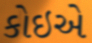
કોઇએ